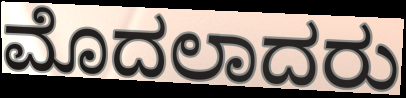
ಮೊದಲಾದರು